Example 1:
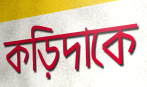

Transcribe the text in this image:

কড়িদাকে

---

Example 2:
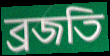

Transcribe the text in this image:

ব্রজতি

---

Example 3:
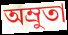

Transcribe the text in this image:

অম্রুতা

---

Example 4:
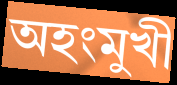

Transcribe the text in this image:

অহংমুখী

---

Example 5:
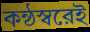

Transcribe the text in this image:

কন্ঠস্বরেই